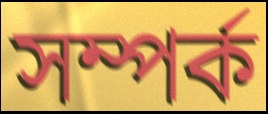
সম্পর্ক